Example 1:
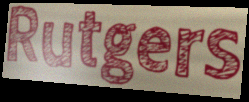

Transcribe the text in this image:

Rutgers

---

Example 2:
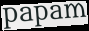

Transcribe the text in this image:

papam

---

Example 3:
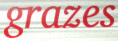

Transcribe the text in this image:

grazes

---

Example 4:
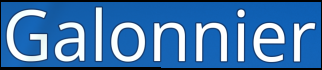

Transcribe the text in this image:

Galonnier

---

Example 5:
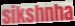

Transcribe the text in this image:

sikshnha